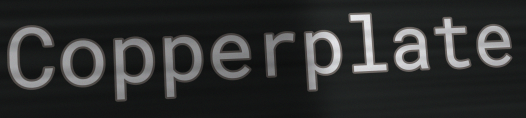
Copperplate